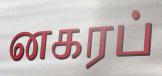
னகரப்